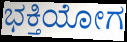
ಭಕ್ತಿಯೋಗ